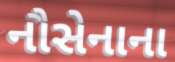
નૌસેનાના